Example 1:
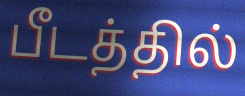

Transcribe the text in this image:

பீடத்தில்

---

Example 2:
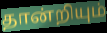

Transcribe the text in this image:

தான்றியும்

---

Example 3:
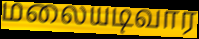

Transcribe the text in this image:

மலையடிவார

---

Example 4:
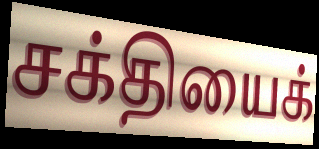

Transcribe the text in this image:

சக்தியைக்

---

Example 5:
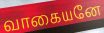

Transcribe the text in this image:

வாகையனே